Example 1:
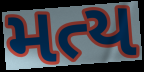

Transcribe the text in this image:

મત્ય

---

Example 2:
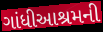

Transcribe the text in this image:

ગાંધીઆશ્રમની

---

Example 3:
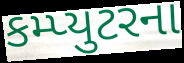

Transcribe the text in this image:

કમ્પ્યુટરના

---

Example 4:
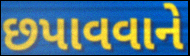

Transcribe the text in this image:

છપાવવાને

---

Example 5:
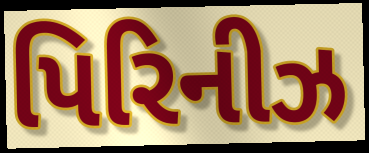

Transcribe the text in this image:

પિરિનીઝ